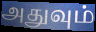
அதுவும்